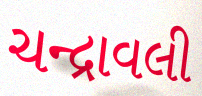
ચન્દ્રાવલી